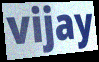
vijay